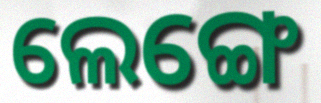
ଲେଙ୍ଗେ